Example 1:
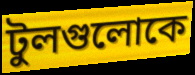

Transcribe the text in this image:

টুলগুলোকে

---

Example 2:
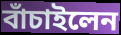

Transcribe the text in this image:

বাঁচাইলেন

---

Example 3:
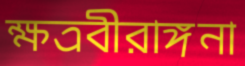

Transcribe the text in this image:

ক্ষত্রবীরাঙ্গনা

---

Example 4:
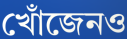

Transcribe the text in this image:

খোঁজেনও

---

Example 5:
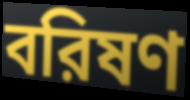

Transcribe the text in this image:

বরিষণ